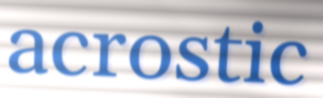
acrostic